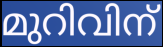
മുറിവിന്